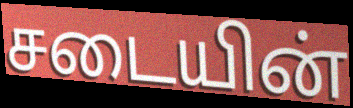
சடையின்